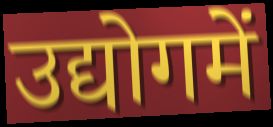
उद्योगमें